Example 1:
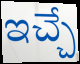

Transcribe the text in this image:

ఇచ్చే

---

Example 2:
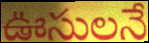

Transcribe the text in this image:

ఊసులనే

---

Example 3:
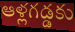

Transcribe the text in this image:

ఆళ్లగడ్డకు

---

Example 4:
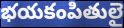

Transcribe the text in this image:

భయకంపితులై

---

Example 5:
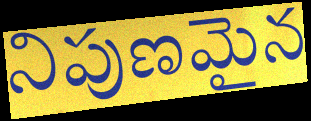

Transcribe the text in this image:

నిపుణమైన